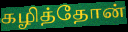
கழித்தோன்